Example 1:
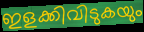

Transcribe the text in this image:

ഇളക്കിവിടുകയും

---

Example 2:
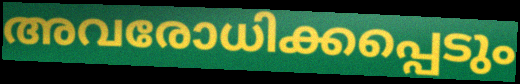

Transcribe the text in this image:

അവരോധിക്കപ്പെടും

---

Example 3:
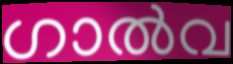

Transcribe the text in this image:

ഗാൽവ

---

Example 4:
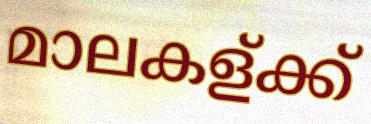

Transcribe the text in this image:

മാലകള്ക്ക്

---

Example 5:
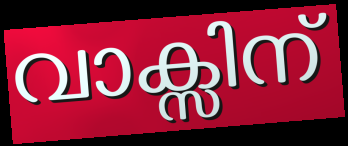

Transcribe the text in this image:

വാക്സിന്